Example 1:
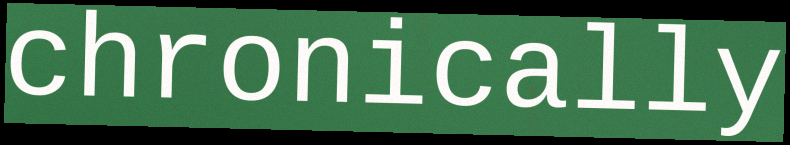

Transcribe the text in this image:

chronically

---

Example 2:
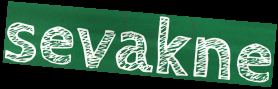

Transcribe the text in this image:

sevakne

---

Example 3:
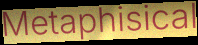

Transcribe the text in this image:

Metaphisical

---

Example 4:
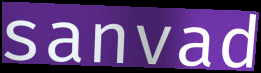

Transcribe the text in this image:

sanvad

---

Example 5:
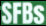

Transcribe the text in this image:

SFBs